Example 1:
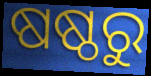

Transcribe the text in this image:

ଷଷ୍ଠରୁ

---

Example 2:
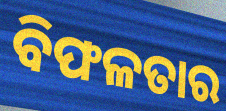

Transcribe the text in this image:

ବିଫଳତାର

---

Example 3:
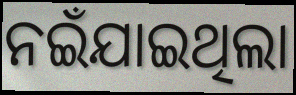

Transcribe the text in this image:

ନଇଁଯାଇଥିଲା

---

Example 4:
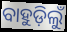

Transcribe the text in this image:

ବାହୁଡ଼ିଲୁଁ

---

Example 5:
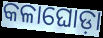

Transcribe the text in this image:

କଳାଘୋଡ଼ା